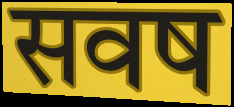
सवष